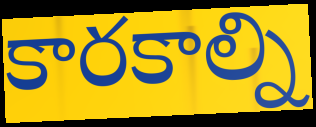
కారకాల్ని